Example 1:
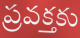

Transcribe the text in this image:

ప్రవక్తకు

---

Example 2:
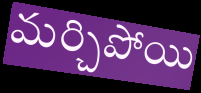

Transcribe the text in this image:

మర్చిపోయి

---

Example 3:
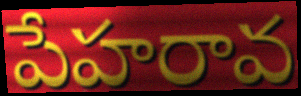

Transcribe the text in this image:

పేహరావ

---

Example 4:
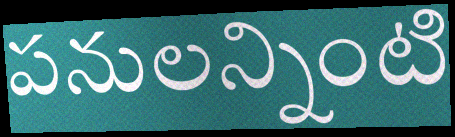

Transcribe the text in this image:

పనులన్నింటి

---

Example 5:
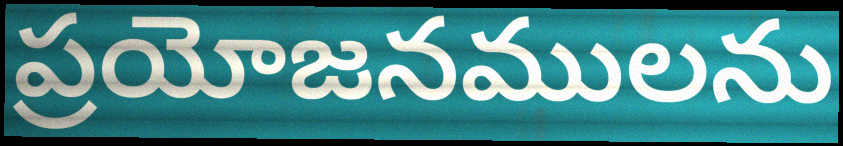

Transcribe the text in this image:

ప్రయోజనములను